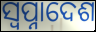
ସ୍ଵପ୍ନାଦେଶ